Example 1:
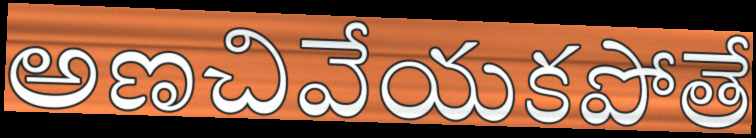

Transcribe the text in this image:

అణచివేయకపోతే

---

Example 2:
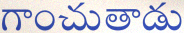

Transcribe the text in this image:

గాంచుతాడు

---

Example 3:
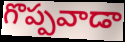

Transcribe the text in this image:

గొప్పవాడా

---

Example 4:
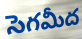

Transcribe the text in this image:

సెగమీద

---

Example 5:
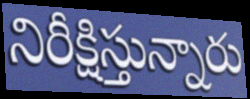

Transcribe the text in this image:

నిరీక్షిస్తున్నారు